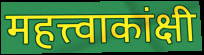
महत्त्वाकांक्षी